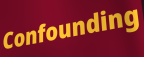
Confounding